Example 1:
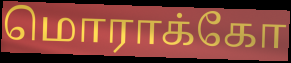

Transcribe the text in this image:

மொராக்கோ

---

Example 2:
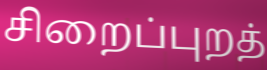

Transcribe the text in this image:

சிறைப்புறத்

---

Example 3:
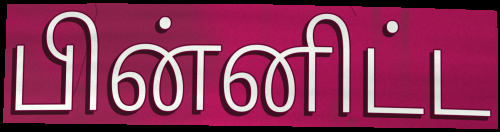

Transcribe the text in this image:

பின்னிட்ட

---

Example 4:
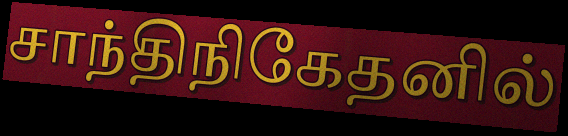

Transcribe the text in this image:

சாந்திநிகேதனில்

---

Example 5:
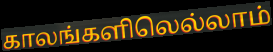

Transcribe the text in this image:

காலங்களிலெல்லாம்